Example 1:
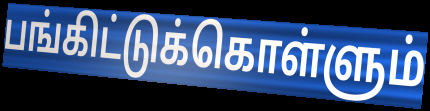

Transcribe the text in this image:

பங்கிட்டுக்கொள்ளும்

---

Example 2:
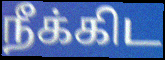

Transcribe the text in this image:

நீக்கிட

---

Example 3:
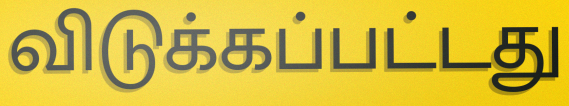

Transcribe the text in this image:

விடுக்கப்பட்டது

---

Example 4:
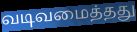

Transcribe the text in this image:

வடிவமைத்தது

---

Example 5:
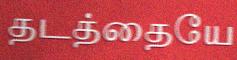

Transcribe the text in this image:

தடத்தையே